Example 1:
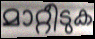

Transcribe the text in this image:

മാറ്റീടുക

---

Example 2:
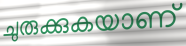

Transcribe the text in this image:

ചുരുക്കുകയാണ്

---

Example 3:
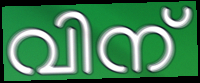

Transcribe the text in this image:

വിന്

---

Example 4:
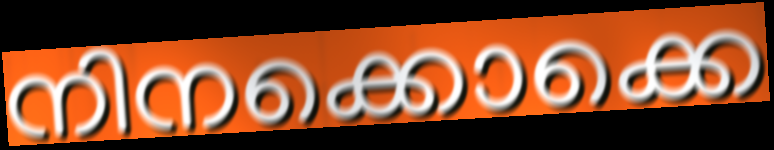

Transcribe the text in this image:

നിനക്കൊക്കെ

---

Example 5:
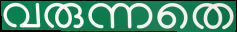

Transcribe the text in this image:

വരുന്നതെ